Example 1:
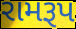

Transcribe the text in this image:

રામરૂપ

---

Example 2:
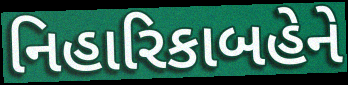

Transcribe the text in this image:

નિહારિકાબહેને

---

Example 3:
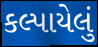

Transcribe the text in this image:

કલ્પાયેલું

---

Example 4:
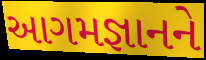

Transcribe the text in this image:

આગમજ્ઞાનને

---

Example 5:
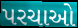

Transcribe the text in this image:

પરચાઓ